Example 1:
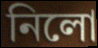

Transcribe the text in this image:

নিলো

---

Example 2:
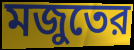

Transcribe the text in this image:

মজুতের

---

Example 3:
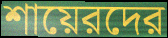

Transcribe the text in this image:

শায়েরদের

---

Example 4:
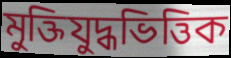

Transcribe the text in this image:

মুক্তিযুদ্ধভিত্তিক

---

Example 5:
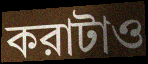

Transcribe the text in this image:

করাটাও